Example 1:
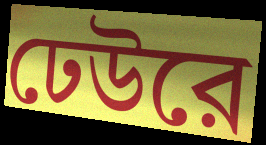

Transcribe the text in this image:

ঢেউরে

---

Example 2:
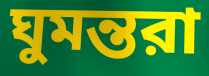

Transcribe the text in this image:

ঘুমন্তরা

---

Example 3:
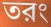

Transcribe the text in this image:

তরং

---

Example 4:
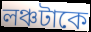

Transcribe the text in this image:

লঞ্চটাকে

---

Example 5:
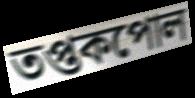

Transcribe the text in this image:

তপ্তকপোল